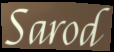
Sarod